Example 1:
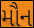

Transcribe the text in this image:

મૌન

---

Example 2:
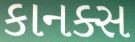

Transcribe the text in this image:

કાનક્સ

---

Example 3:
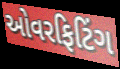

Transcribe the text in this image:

ઓવરફિટિંગ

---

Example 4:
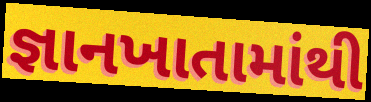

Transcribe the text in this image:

જ્ઞાનખાતામાંથી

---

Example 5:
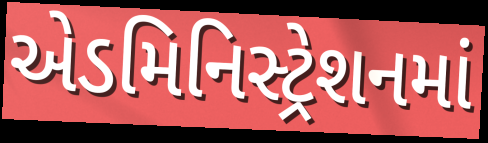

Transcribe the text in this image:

એડમિનિસ્ટ્રેશનમાં